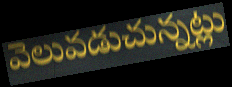
వెలువడుచున్నట్లు